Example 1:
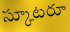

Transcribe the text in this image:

స్కూటరూ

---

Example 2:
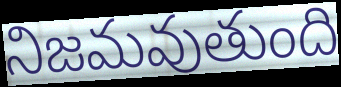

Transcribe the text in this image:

నిజమవుతుంది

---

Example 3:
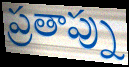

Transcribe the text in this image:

ప్రతాప్ను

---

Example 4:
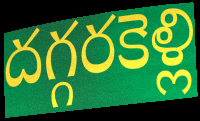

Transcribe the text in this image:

దగ్గరకెళ్లి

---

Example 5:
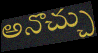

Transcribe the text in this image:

అనొచ్చు